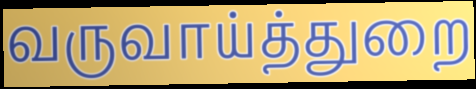
வருவாய்த்துறை